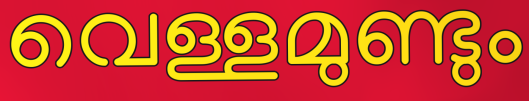
വെള്ളമുണ്ടും